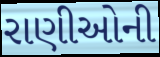
રાણીઓની